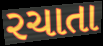
રચાતા